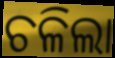
ଚଳିଲା